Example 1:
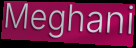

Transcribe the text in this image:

Meghani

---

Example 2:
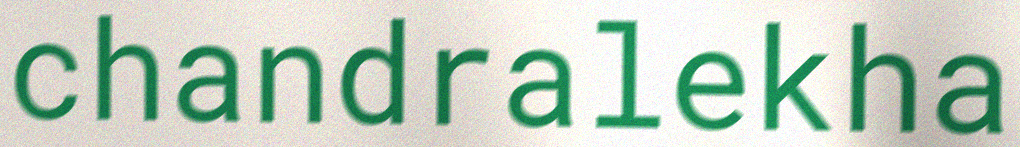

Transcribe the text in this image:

chandralekha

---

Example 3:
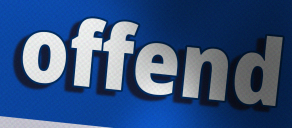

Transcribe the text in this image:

offend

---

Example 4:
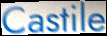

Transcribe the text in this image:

Castile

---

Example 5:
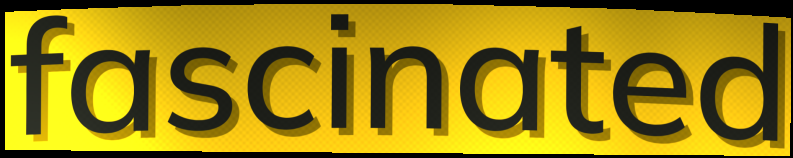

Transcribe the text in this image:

fascinated